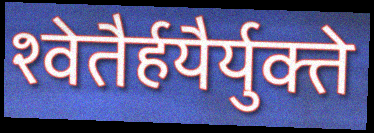
श्वेतैर्हयैर्युक्ते